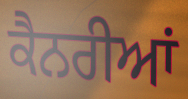
ਕੈਨਰੀਆਂ